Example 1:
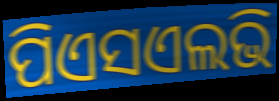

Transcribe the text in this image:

ପିଏସଏଲଭି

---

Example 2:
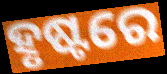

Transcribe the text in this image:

ହୃଷ୍ଟରେ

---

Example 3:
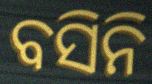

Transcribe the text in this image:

ବସିନି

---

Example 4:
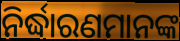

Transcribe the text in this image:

ନିର୍ଦ୍ଧାରଣମାନଙ୍କ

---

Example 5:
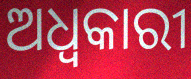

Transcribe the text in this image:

ଅଧ୍ବକାରୀ